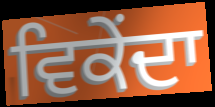
ਵਿਕੇਂਦਾ